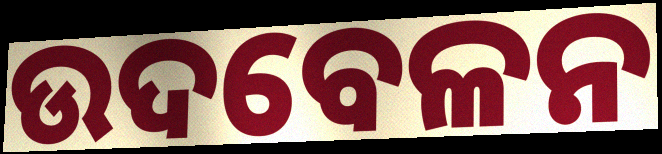
ଉଦବେଳନ